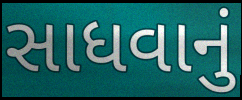
સાધવાનું